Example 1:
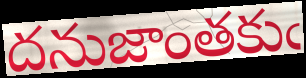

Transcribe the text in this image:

దనుజాంతకుఁ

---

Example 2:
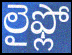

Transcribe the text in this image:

లైఫ్లో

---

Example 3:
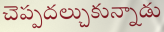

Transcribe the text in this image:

చెప్పదల్చుకున్నాడు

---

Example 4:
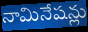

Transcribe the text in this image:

నామినేషన్లు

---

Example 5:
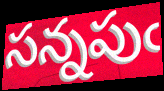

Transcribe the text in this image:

సన్నపుఁ